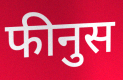
फीनुस